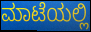
ಮಾಟೆಯಲ್ಲಿ